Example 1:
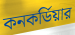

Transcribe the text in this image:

কনকর্ডিয়ার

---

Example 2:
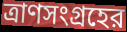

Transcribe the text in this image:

ত্রাণসংগ্রহের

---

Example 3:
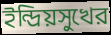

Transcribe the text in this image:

ইন্দ্রিয়সুখের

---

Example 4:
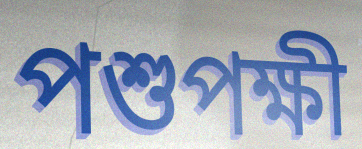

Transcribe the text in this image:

পশুপক্ষী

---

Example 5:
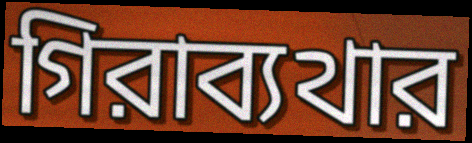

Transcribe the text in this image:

গিরাব্যথার